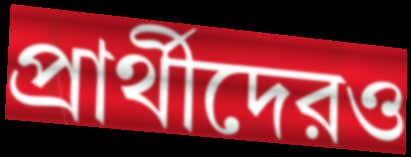
প্রার্থীদেরও